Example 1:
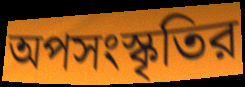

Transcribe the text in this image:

অপসংস্কৃতির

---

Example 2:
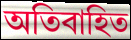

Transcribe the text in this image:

অতিবাহিত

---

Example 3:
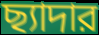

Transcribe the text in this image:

ছ্যাদার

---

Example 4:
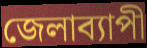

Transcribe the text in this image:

জেলাব্যাপী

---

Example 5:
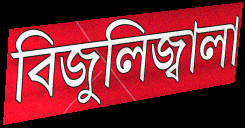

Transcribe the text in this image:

বিজুলিজ্বালা